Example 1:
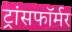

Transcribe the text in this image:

ट्रांसफॉर्मर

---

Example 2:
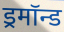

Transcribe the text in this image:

ड्रमॉन्ड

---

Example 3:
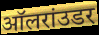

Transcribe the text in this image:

ऑलरांउडर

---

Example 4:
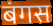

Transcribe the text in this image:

बंगस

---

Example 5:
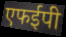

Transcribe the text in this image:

एफईपी